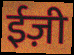
ईज़ी